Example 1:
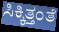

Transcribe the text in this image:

ಸಿಕ್ಕಿತ್ತಂತೆ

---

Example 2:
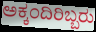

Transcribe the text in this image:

ಅಕ್ಕಂದಿರಿಬ್ಬರು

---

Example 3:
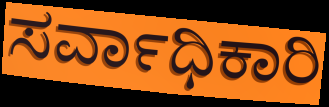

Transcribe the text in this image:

ಸರ್ವಾಧಿಕಾರಿ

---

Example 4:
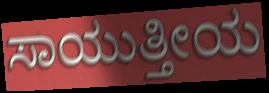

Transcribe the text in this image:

ಸಾಯುತ್ತೀಯ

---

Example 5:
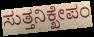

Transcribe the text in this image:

ಸುತ್ತನಿಕ್ಖೇಪಂ